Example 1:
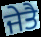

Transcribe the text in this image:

ਜੇਤੈ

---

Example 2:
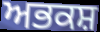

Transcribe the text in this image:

ਅਭਕਸ਼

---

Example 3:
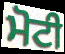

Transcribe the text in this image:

ਮੋਟੀ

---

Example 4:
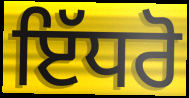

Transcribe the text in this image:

ਇੱਧਰੋ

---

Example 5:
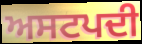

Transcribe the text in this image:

ਅਸਟਪਦੀ